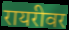
रायरीवर